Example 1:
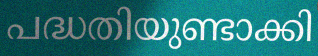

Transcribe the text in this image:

പദ്ധതിയുണ്ടാക്കി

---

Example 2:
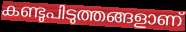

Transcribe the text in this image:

കണ്ടുപിടുത്തങ്ങളാണ്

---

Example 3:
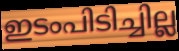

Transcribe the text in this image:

ഇടംപിടിച്ചില്ല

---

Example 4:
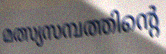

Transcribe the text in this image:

മത്സ്യസമ്പത്തിന്റെ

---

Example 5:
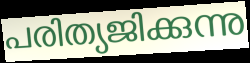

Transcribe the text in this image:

പരിത്യജിക്കുന്നു